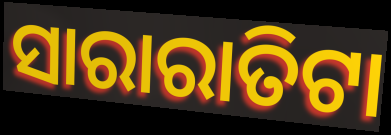
ସାରାରାତିଟା